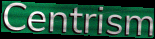
Centrism